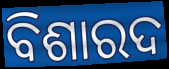
ବିଶାରଦ